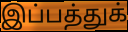
இப்பத்துக்